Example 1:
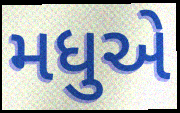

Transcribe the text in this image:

મધુએ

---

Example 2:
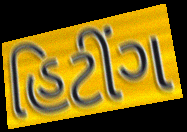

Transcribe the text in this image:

હિટીંગ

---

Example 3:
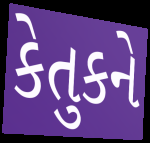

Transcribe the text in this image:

કેતુકને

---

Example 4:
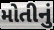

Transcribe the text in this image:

મોતીનું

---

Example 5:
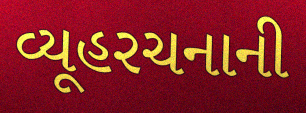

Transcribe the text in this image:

વ્યૂહરચનાની